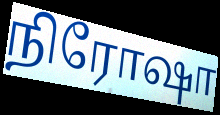
நிரோஷா